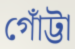
গোঁট্টা